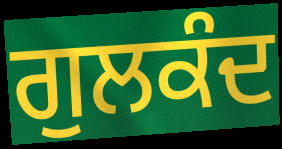
ਗੁਲਕੰਦ